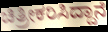
ಚಿತ್ರೀಕರಿಸಿದ್ದಾನೆ